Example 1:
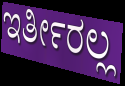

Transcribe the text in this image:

ಇರ್ತೀರಲ್ಲ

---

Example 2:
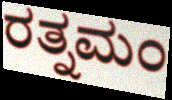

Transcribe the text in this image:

ರತ್ನಮಂ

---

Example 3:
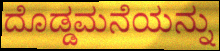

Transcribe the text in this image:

ದೊಡ್ಡಮನೆಯನ್ನು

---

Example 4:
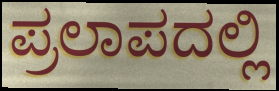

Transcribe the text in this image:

ಪ್ರಲಾಪದಲ್ಲಿ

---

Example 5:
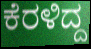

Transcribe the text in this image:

ಕೆರಳಿದ್ದ